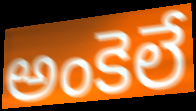
అంకెలే